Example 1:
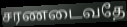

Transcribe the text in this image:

சரணடைவதே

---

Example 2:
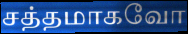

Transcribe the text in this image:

சத்தமாகவோ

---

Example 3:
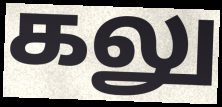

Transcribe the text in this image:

கலு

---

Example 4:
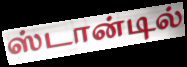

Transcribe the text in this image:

ஸ்டான்டில்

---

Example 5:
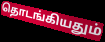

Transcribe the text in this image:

தொடங்கியதும்